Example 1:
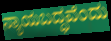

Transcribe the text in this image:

ನ್ಯಾಯಬದ್ಧವೆಂದು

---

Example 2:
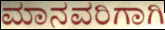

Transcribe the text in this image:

ಮಾನವರಿಗಾಗಿ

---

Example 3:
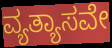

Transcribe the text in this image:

ವ್ಯತ್ಯಾಸವೇ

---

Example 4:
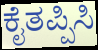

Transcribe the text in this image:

ಕೈತಪ್ಪಿಸಿ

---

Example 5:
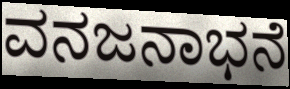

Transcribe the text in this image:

ವನಜನಾಭನೆ